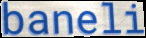
baneli